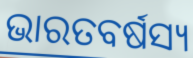
ଭାରତବର୍ଷସ୍ୟ